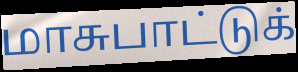
மாசுபாட்டுக்